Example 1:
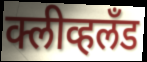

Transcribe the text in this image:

क्लीव्हलँड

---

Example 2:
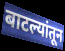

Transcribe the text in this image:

बाटल्यांतून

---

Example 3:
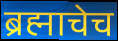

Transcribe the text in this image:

ब्रह्माचेच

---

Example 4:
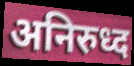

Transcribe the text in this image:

अनिरुध्द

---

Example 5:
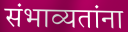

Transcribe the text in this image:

संभाव्यतांना